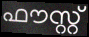
ഫൗസ്റ്റ്